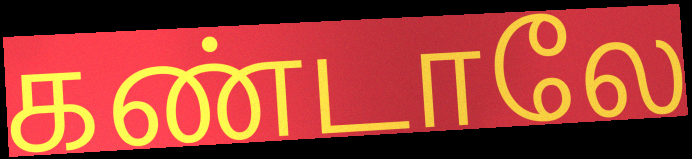
கண்டாலே